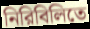
নিরিবিলিতে